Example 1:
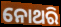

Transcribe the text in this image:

ନୋଥରି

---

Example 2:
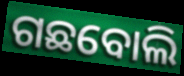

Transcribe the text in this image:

ଗଛବୋଲି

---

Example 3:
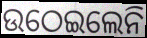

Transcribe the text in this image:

ଉଠେଇଲେନି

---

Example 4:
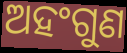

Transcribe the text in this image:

ଅହଂଗୁଣ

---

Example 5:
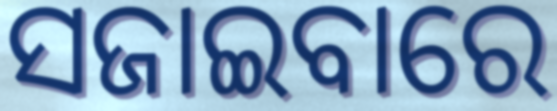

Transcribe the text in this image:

ସଜାଇବାରେ